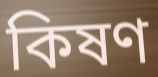
কিষণ